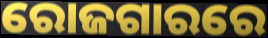
ରୋଜଗାରରେ